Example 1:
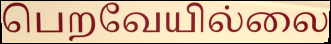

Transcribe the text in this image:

பெறவேயில்லை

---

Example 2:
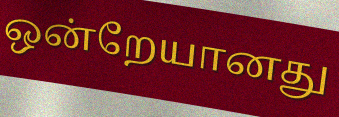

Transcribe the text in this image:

ஒன்றேயானது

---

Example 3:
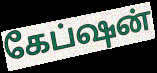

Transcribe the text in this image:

கேப்ஷன்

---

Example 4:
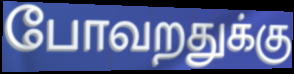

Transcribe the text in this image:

போவறதுக்கு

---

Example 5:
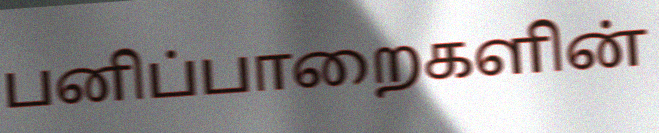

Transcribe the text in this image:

பனிப்பாறைகளின்